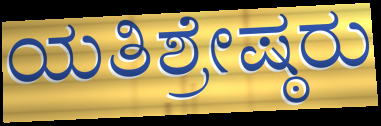
ಯತಿಶ್ರೇಷ್ಠರು